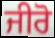
ਜੀਰੋ